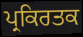
ਪ੍ਰਕਿਰਤਕ